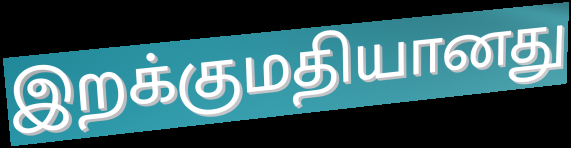
இறக்குமதியானது